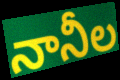
నానీల